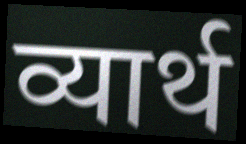
व्यार्थ